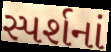
સ્પર્શનાં